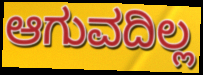
ಆಗುವದಿಲ್ಲ